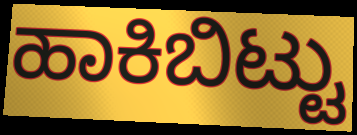
ಹಾಕಿಬಿಟ್ಟು